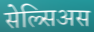
सेल्सिअस